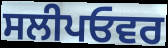
ਸਲੀਪਓਵਰ